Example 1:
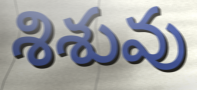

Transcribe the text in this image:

శిశువు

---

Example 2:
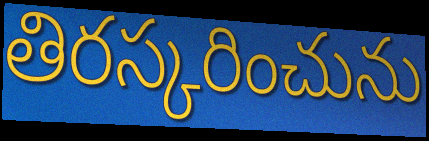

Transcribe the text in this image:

తిరస్కరించును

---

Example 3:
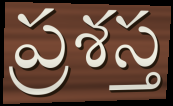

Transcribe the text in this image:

ప్రశస్త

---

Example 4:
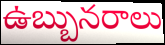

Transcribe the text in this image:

ఉబ్బునరాలు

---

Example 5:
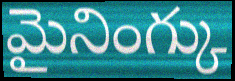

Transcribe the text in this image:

మైనింగ్కు